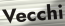
Vecchi